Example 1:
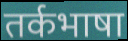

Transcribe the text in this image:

तर्कभाषा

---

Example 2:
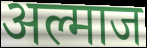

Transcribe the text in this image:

अल्माज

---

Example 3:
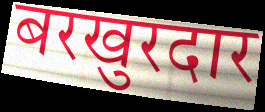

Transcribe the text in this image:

बरखुरदार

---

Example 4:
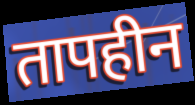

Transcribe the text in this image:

तापहीन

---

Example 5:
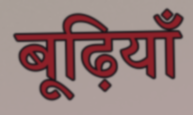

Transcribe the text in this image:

बूढ़ियाँ